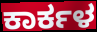
ಕಾರ್ಕಳ